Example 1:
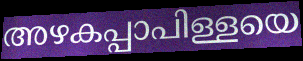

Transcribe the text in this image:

അഴകപ്പാപിള്ളയെ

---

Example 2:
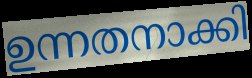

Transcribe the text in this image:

ഉന്നതനാക്കി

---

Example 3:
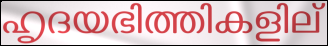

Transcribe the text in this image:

ഹൃദയഭിത്തികളില്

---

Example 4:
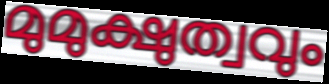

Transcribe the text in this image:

മുമുക്ഷുത്വവും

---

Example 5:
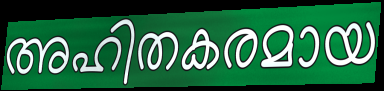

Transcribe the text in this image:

അഹിതകരമായ